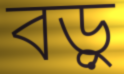
বড়ু